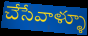
చేసేవాళ్ళూ